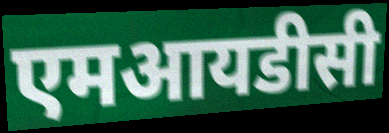
एमआयडीसी